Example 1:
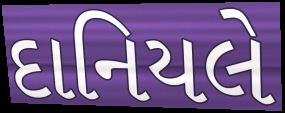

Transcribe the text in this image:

દાનિયલે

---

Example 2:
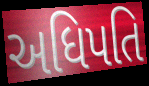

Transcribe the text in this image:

અધિપતિ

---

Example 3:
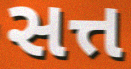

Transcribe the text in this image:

સત્ત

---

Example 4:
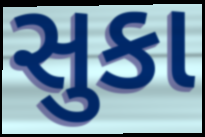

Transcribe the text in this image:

સુકા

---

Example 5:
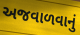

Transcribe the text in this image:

અજવાળવાનું